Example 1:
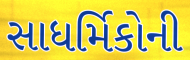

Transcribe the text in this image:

સાધર્મિકોની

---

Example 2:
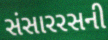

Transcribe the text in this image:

સંસારરસની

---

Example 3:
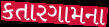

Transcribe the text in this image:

કતારગામના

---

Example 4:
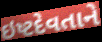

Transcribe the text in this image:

ઇષ્ટદેવતાને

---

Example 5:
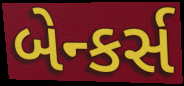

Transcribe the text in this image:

બેન્કર્સ